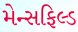
મેન્સફિલ્ડ